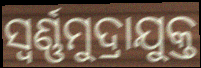
ସ୍ବର୍ଣ୍ଣମୁଦ୍ରାଯୁକ୍ତ